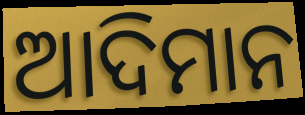
ଆଦିମାନ